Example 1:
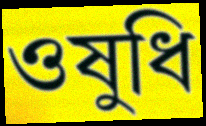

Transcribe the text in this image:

ওষুধি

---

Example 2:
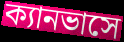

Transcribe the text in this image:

ক্যানভাসে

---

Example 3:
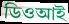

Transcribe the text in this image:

ডিওআই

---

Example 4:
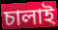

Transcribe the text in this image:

চালাই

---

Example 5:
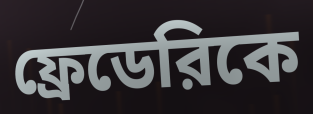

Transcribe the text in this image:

ফ্রেডেরিকে